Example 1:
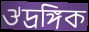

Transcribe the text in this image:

ঔদ্রঙ্গিক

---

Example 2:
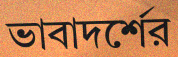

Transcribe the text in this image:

ভাবাদর্শের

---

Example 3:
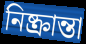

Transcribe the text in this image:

নিষ্ক্রান্তা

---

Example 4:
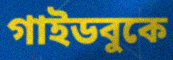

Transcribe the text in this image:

গাইডবুকে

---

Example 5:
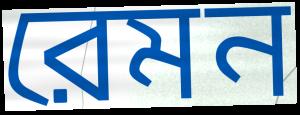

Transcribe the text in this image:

রেমন